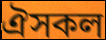
ঐসকল